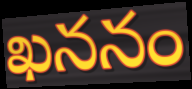
ఖననం